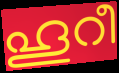
ഹൂറീ